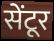
सेंटूर